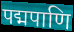
पद्मपाणि